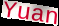
Yuan